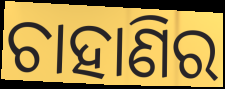
ଚାହାଣିର